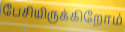
பேசியிருக்கிறோம்